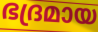
ഭദ്രമായ